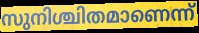
സുനിശ്ചിതമാണെന്ന്